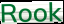
Rook